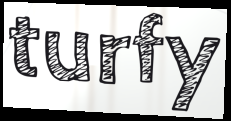
turfy